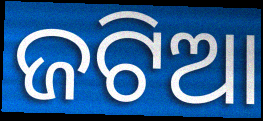
ଜଟିଆ